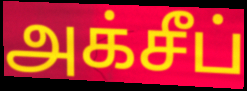
அக்சீப்